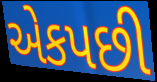
એકપછી